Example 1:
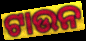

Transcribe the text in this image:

ଟାଉନ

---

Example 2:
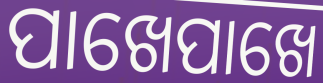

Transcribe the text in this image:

ପାଖେପାଖେ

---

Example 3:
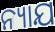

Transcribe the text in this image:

ନ୍ୟାଯ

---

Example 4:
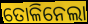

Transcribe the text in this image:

ତୋଳିନେଲା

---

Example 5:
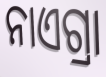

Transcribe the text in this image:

ନାଏଗ୍ରା